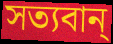
সত্যবান্